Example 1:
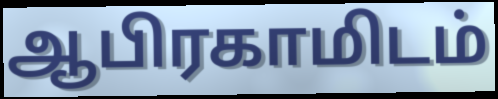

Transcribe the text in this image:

ஆபிரகாமிடம்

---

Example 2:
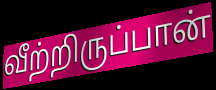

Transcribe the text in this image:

வீற்றிருப்பான்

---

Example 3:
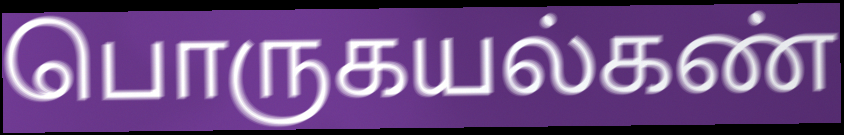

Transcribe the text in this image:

பொருகயல்கண்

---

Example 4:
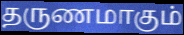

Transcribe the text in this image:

தருணமாகும்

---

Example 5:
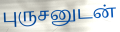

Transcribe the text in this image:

புருசனுடன்